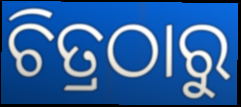
ଚିତ୍ରଠାରୁ